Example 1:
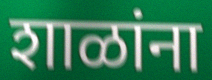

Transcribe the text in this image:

शाळांना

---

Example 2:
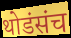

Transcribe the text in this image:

थोडंसंच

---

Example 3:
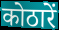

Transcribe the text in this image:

कोठारें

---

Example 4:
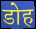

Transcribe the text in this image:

डोह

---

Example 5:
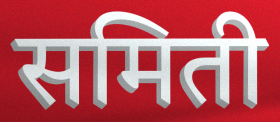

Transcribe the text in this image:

समिती